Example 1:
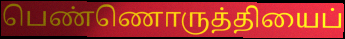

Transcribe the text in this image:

பெண்ணொருத்தியைப்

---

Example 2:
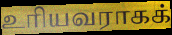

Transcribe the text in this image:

உரியவராகக்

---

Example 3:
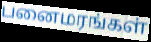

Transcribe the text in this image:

பனைமரங்கள்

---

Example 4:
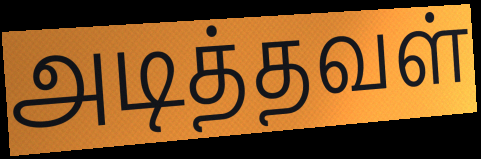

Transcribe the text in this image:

அடித்தவள்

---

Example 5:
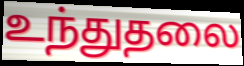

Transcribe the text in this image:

உந்துதலை